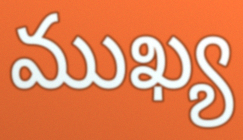
ముఖ్య